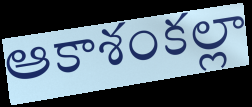
ఆకాశంకల్లా